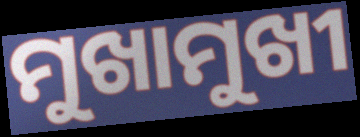
ମୁଖାମୁଖୀ